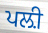
ਪਲ਼ੀ